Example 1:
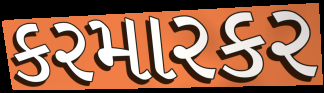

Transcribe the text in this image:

કરમારકર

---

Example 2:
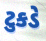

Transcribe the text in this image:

ટુકડે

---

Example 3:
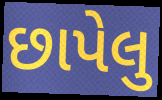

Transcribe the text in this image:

છાપેલુ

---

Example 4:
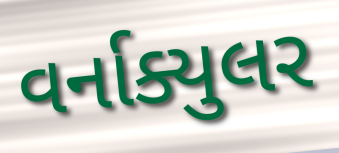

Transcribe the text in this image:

વર્નાક્યુલર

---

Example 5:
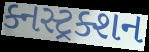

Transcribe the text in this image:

ક્નસ્ટ્રક્શન